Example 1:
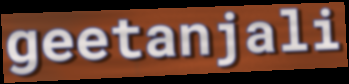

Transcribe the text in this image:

geetanjali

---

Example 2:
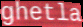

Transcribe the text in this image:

ghetla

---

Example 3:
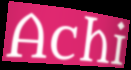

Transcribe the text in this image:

Achi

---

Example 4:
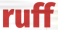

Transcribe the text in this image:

ruff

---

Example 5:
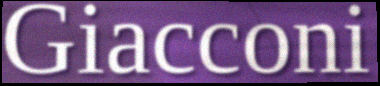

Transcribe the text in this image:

Giacconi